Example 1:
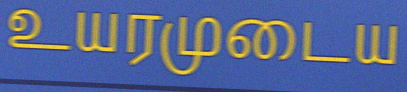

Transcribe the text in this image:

உயரமுடைய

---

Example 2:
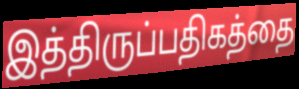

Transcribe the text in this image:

இத்திருப்பதிகத்தை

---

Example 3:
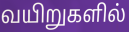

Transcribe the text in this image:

வயிறுகளில்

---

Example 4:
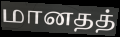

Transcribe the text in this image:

மானதத்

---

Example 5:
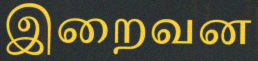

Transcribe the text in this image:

இறைவன